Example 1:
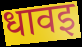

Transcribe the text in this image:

धावइ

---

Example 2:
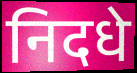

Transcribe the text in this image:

निदधे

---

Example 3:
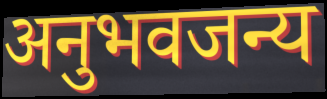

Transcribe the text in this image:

अनुभवजन्य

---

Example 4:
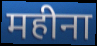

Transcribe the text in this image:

महीना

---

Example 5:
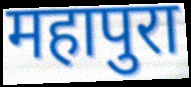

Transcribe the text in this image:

महापुरा